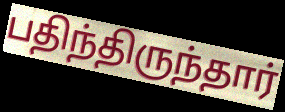
பதிந்திருந்தார்